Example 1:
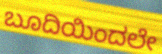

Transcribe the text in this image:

ಬೂದಿಯಿಂದಲೇ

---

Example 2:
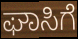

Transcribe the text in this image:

ಘಾಸಿಗೆ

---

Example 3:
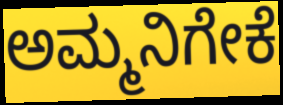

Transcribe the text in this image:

ಅಮ್ಮನಿಗೇಕೆ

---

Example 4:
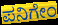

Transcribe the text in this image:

ಪನಿಗೇಂ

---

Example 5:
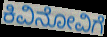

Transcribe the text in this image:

ಕಿವಿನೋವಿಗೆ